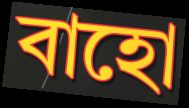
বাহো